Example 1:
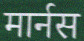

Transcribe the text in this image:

मार्नस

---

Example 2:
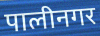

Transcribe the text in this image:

पालीनगर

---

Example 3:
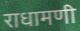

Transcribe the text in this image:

राधामणी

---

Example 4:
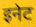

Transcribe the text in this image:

इनेट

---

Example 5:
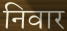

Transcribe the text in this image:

निवार